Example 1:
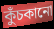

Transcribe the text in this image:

কুঁচকানো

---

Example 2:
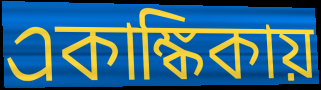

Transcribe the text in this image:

একাঙ্কিকায়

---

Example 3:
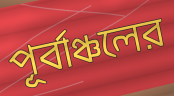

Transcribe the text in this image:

পূর্বাঞ্চলের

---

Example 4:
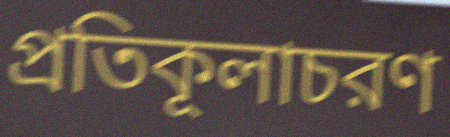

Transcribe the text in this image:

প্রতিকূলাচরণ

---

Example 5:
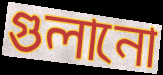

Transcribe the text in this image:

গুলানো